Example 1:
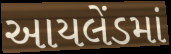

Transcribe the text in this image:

આયલેંડમાં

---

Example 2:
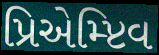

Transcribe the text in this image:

પ્રિએમ્પ્ટિવ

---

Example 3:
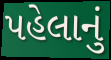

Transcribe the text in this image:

પહેલાનું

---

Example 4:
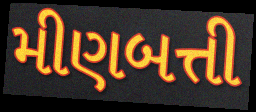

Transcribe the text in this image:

મીણબત્તી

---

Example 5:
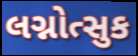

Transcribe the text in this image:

લગ્નોત્સુક